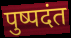
पुष्पदंत